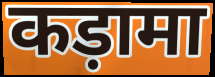
कड़ामा